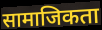
सामाजिकता